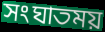
সংঘাতময়